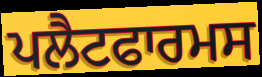
ਪਲੈਟਫਾਰਮਸ